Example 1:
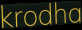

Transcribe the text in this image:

krodha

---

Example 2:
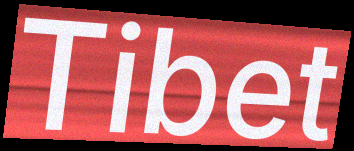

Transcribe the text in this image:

Tibet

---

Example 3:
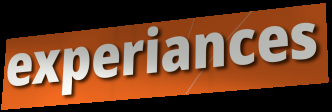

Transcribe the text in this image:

experiances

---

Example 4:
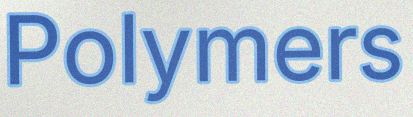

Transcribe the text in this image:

Polymers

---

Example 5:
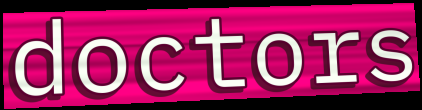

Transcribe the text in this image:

doctors